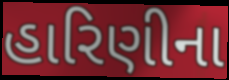
હારિણીના